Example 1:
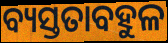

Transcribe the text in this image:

ବ୍ୟସ୍ତତାବହୁଳ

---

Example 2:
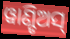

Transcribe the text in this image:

ୱାଣ୍ଡିଅସ୍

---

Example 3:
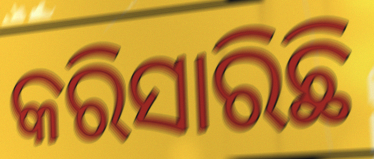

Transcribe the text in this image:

କରିସାରିଛି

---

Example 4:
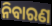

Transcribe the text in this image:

ନିବାରଣ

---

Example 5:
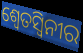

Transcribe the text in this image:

ଶ୍ୱେତସ୍ୱିନୀର